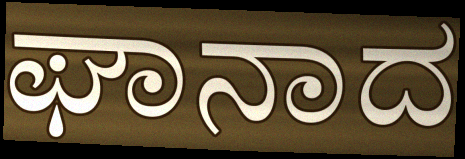
ಘಾನಾದ